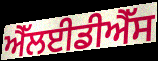
ਐੱਲਈਡੀਐੱਸ